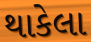
થાકેલા